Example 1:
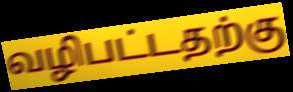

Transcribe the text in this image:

வழிபட்டதற்கு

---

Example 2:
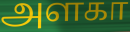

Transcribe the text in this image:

அளகா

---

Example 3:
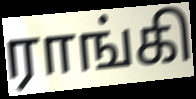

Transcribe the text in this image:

ராங்கி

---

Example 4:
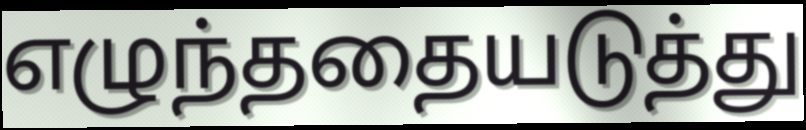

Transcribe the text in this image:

எழுந்ததையடுத்து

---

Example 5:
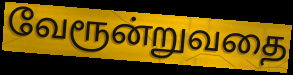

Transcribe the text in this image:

வேரூன்றுவதை